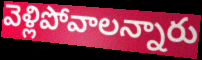
వెళ్లిపోవాలన్నారు